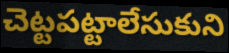
చెట్టపట్టాలేసుకుని